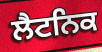
ਲੈਟਨਿਕ